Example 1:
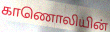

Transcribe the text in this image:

காணொலியின்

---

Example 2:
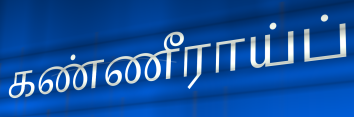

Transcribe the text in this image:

கண்ணீராய்ப்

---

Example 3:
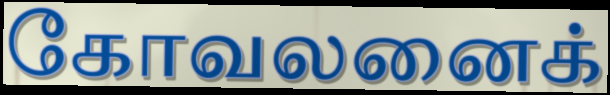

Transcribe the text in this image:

கோவலனைக்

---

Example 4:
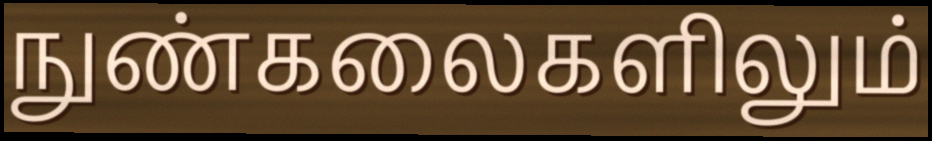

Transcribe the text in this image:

நுண்கலைகளிலும்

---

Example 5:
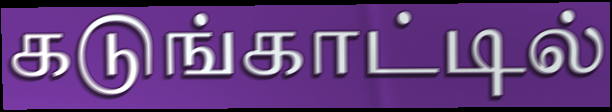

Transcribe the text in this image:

கடுங்காட்டில்